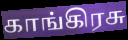
காங்கிரசு